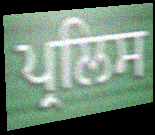
ਪ੍ਰਲਿਸ